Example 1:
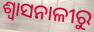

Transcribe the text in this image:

ଶ୍ୱାସନାଳୀରୁ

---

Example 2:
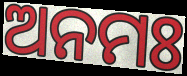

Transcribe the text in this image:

ଅନମଃ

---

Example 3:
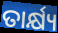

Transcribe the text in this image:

ତାର୍କ୍ଷ୍ୟ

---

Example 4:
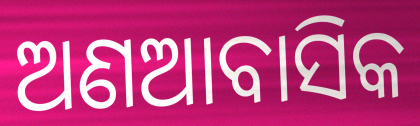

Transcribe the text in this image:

ଅଣଆବାସିକ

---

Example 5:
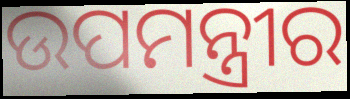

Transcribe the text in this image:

ଉପମନ୍ତ୍ରୀର